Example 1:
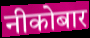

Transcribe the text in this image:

नीकोबार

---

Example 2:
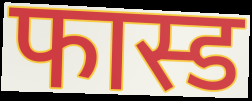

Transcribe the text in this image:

फास्ड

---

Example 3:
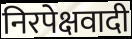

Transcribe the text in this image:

निरपेक्षवादी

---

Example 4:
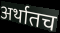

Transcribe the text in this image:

अर्थातच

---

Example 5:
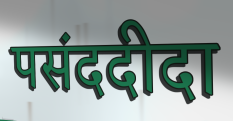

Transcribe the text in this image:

पसंददीदा